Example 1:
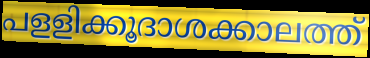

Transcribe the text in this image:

പളളിക്കൂദാശക്കാലത്ത്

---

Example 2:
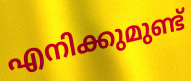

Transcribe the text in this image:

എനിക്കുമുണ്ട്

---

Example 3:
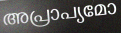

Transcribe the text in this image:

അപ്രാപ്യമോ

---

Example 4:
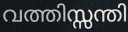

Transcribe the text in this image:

വത്തിസ്സന്തി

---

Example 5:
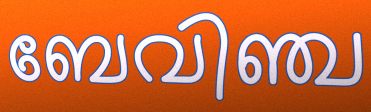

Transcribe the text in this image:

ബേവിഞ്ച